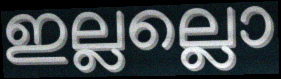
ഇല്ലല്ലൊ